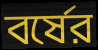
বর্ষের